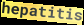
hepatitis